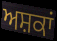
ਅਸ਼ਕਾਂ